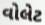
વોલેટ